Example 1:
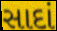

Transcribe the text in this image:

સાદાં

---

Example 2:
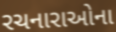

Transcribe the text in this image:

રચનારાઓના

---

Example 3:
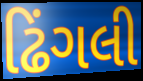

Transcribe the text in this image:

ઢિંગલી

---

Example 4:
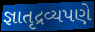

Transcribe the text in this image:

જ્ઞાતૃદ્રવ્યપણે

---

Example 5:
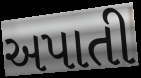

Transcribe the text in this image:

અપાતી